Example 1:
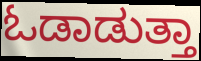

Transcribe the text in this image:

ಓಡಾಡುತ್ತಾ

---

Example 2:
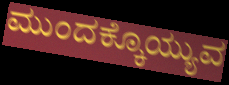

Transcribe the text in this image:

ಮುಂದಕ್ಕೊಯ್ಯುವ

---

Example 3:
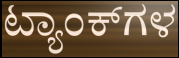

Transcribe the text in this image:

ಟ್ಯಾಂಕ್‌ಗಳ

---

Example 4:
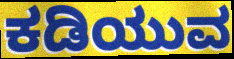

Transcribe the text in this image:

ಕಡಿಯುವ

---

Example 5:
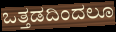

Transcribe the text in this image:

ಒತ್ತಡದಿಂದಲೂ